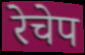
रेचेप